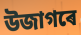
উজাগৰে